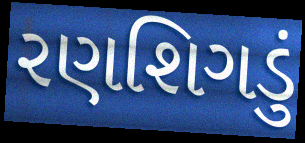
રણશિગડું